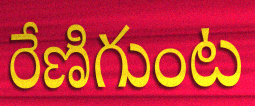
రేణిగుంట